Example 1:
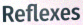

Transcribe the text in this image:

Reflexes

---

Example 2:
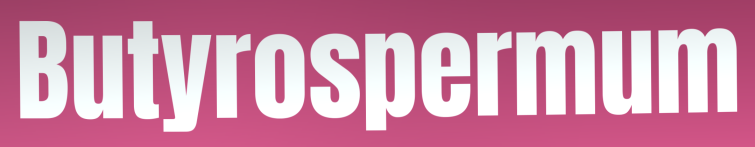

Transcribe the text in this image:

Butyrospermum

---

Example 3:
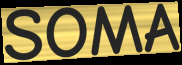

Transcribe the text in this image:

SOMA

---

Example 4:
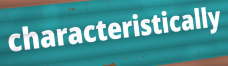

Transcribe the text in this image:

characteristically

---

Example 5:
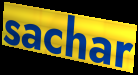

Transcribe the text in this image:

sachar